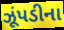
ઝૂંપડીના